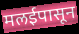
मलईपासून